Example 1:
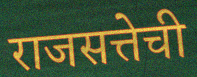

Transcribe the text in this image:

राजसत्तेची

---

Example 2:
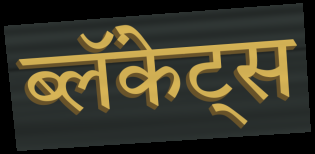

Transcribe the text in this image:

ब्लॅंकेट्स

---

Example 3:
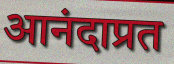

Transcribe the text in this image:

आनंदाप्रत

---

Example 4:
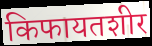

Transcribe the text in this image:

किफायतशीर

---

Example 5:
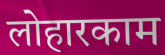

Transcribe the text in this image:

लोहारकाम